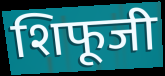
शिफूजी